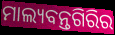
ମାଲ୍ୟବନ୍ତଗିରିର